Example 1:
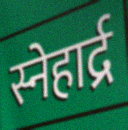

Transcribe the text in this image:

स्नेहार्द्र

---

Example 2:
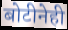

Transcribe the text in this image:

बोटीनेही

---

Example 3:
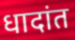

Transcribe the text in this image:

धादांत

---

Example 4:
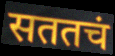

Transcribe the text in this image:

सततचं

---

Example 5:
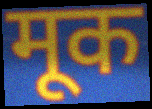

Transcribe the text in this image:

मूक